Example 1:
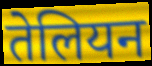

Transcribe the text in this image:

तेलियन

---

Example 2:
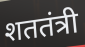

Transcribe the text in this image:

शततंत्री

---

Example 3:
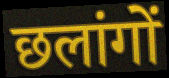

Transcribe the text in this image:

छलांगों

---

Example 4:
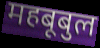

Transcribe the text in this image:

महबूबुल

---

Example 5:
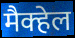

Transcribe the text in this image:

मैक्हेल